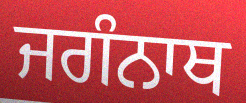
ਜਗੰਨਾਥ